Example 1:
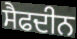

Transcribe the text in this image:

ਸੈਫਦੀਨ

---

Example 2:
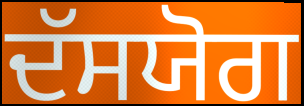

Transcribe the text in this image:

ਦੱਸਯੋਗ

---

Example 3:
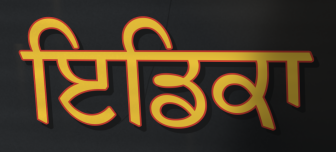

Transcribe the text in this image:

ਇਡਿਕਾ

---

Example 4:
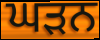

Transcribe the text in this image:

ਘੜਨ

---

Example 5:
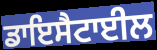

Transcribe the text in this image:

ਡਾਇਸੈਟਾਈਲ